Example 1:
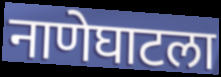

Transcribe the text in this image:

नाणेघाटला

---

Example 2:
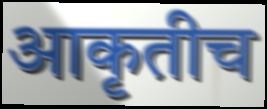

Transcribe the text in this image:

आकृतीच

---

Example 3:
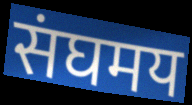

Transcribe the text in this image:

संघमय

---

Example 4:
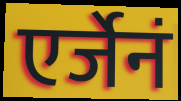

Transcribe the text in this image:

एर्जेनं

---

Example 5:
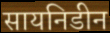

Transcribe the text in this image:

सायनिडीन